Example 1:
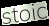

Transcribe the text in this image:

stoic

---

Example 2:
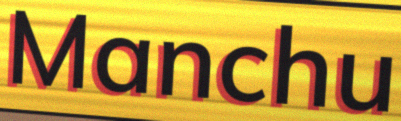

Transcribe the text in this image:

Manchu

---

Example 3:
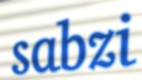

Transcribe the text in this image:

sabzi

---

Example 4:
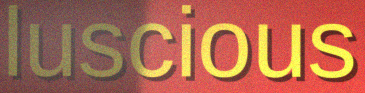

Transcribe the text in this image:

luscious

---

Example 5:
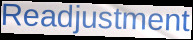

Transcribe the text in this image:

Readjustment